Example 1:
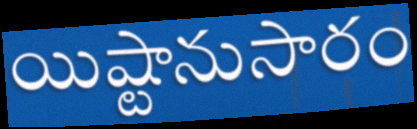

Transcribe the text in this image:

యిష్టానుసారం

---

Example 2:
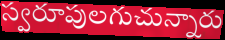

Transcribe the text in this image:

స్వరూపులగుచున్నారు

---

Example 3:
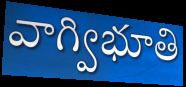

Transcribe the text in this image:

వాగ్విభూతి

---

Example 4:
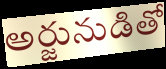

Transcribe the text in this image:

అర్జునుడితో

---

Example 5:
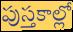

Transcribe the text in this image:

పుస్తకాల్లో